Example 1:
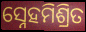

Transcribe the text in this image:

ସ୍ନେହମିଶ୍ରିତ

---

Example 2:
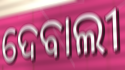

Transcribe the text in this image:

ଦେବାଲୀ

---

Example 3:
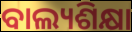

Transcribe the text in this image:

ବାଲ୍ୟଶିକ୍ଷା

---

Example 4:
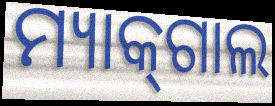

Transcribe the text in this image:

ମ୍ୟାକ୍‌ଗାଲ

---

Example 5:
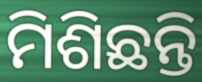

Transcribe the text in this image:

ମିଶିଛନ୍ତି